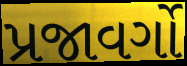
પ્રજાવર્ગો